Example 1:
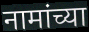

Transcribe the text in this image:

नामांच्या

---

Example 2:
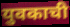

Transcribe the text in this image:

युवकाची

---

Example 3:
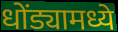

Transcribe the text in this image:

धोंड्यामध्ये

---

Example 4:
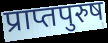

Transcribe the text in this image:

प्राप्तपुरुष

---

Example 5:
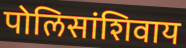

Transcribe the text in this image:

पोलिसांशिवाय